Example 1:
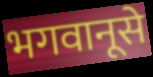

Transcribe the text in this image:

भगवानूसे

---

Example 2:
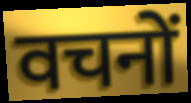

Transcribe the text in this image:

वचनों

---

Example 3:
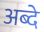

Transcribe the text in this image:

अब्दे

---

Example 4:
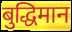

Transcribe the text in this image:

बुद्धिमान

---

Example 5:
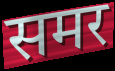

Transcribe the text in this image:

समर